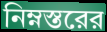
নিম্নস্তরের